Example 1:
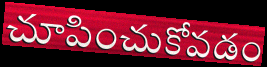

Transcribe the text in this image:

చూపించుకోవడం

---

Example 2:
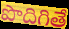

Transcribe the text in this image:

పొదిగితే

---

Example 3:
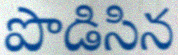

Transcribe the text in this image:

పొడిసిన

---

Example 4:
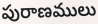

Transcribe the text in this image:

పురాణములు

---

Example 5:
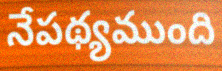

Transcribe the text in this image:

నేపథ్యముంది